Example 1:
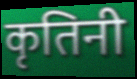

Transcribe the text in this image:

कृतिनी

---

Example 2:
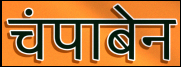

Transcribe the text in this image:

चंपाबेन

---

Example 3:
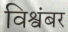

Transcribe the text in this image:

विश्वंबर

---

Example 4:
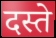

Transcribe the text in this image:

दस्ते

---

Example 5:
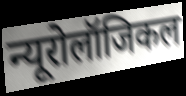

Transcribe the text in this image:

न्यूरोलॉजिकल